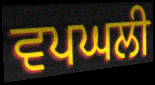
ਵਪਘਲੀ